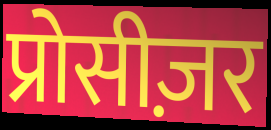
प्रोसीज़र